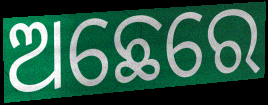
ଅଛେରେ